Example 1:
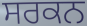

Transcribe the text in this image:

ਸਰਕਨ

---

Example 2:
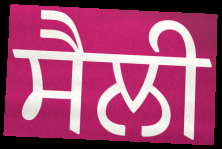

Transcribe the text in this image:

ਸੈਲੀ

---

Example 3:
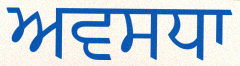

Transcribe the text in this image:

ਅਵਸਧਾ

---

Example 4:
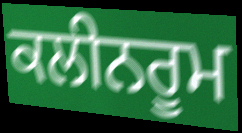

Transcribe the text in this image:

ਕਲੀਨਰੂਮ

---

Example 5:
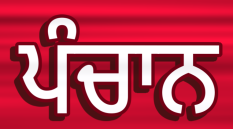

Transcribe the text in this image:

ਪੰਚਾਨ